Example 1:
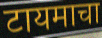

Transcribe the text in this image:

टायमाचा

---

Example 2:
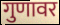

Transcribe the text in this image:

गुणावर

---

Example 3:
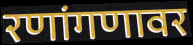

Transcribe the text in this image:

रणांगणावर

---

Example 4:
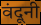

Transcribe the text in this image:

वंदूनी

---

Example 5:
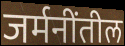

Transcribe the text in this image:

जर्मनींतील